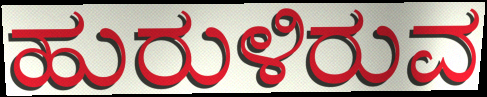
ಹುರುಳಿರುವ